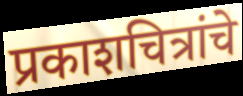
प्रकाशचित्रांचे